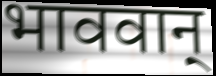
भाववान्